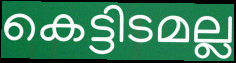
കെട്ടിടമല്ല